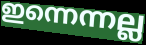
ഇന്നെന്നല്ല